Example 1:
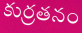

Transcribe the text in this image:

కుర్రతనం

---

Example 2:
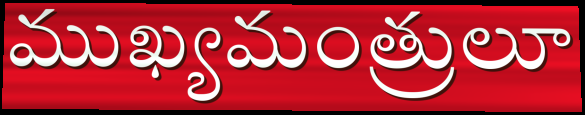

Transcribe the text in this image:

ముఖ్యమంత్రులూ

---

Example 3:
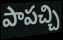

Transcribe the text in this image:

పాపచ్చి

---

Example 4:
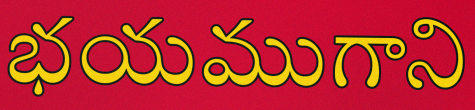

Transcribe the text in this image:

భయముగాని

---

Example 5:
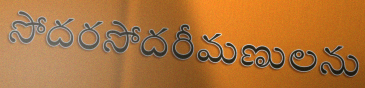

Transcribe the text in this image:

సోదరసోదరీమణులను